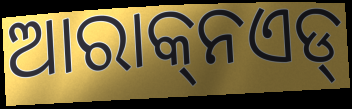
ଆରାକ୍‌ନଏଡ୍